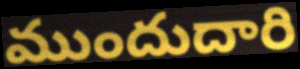
ముందుదారి